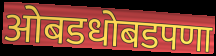
ओबडधोबडपणा